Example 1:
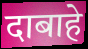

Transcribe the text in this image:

दाबाहे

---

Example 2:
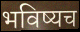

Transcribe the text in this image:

भविष्यच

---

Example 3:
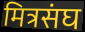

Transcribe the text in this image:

मित्रसंघ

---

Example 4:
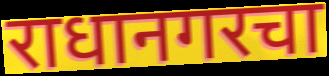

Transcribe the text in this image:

राधानगरचा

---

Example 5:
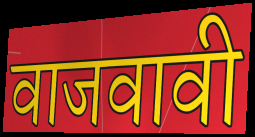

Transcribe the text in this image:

वाजवावी